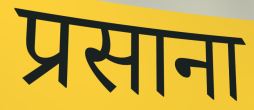
प्रसाना